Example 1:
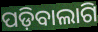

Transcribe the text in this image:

ପଡ଼ିବାଲାଗି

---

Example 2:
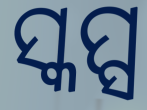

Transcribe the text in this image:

ସ୍କପ୍ସ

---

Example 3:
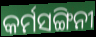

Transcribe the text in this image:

କର୍ମସଙ୍ଗିନୀ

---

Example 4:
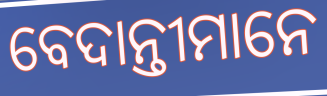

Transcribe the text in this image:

ବେଦାନ୍ତୀମାନେ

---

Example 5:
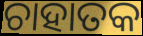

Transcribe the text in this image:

ଚାହାତକ